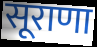
सूराणा